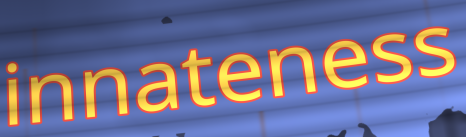
innateness